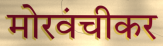
मोरवंचीकर